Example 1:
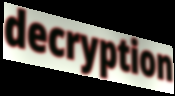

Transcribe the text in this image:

decryption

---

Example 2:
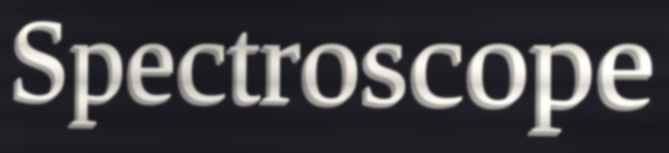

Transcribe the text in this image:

Spectroscope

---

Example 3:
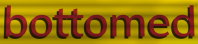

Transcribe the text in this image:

bottomed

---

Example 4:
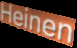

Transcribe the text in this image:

Heinen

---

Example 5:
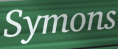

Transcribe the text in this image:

Symons